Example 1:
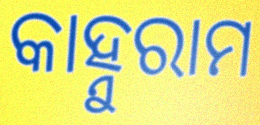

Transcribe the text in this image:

କାହ୍ନୁରାମ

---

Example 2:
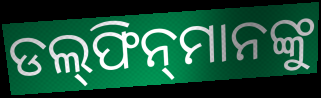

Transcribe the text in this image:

ଡଲ୍‍ଫିନ୍‍ମାନଙ୍କୁ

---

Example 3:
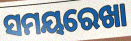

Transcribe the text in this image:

ସମୟରେଖା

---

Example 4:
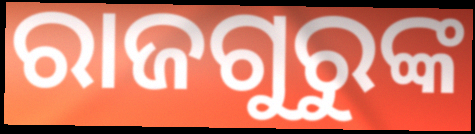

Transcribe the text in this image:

ରାଜଗୁରୁଙ୍କ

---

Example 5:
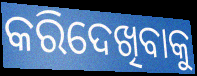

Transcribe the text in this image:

କରିଦେଖିବାକୁ